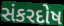
સંકરદોષ